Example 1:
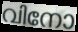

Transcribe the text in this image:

വിനോ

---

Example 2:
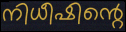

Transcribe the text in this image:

നിധീഷിന്റെ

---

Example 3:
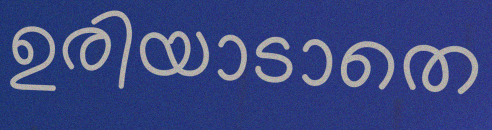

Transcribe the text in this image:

ഉരിയാടാതെ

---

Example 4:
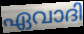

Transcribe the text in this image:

ഏവാദി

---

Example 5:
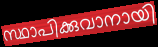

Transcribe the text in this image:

സ്ഥാപിക്കുവാനായി